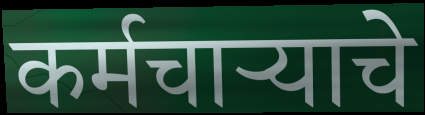
कर्मचाऱ्याचे